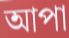
আপা